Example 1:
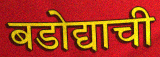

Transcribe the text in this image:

बडोद्याची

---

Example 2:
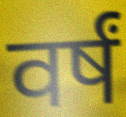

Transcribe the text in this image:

वर्षं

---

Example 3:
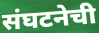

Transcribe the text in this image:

संघटनेची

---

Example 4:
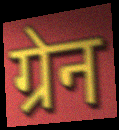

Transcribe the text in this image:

ग्रेन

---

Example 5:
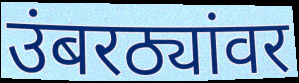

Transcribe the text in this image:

उंबरठ्यांवर